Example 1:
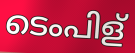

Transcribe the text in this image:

ടെംപിള്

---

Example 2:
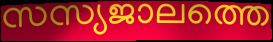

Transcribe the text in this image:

സസ്യജാലത്തെ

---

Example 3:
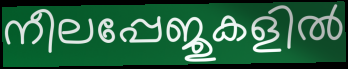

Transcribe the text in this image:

നീലപ്പേജുകളിൽ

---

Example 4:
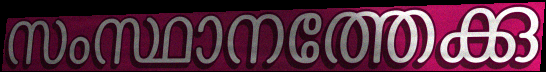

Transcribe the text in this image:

സംസ്ഥാനത്തേക്കു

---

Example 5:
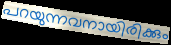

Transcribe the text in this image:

പറയുന്നവനായിരിക്കും